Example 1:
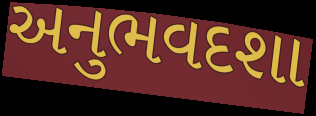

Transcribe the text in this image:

અનુભવદશા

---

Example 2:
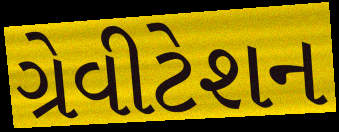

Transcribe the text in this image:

ગ્રેવીટેશન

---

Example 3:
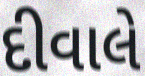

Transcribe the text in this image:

દીવાલે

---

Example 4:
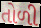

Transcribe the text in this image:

તોળી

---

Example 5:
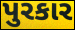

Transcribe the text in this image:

પુરકાર